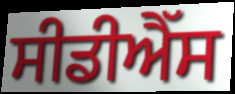
ਸੀਡੀਐੱਸ